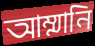
আম্মানি